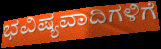
ಭವಿಷ್ಯವಾದಿಗಳಿಗೆ